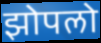
झोपलो